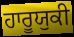
ਹਾਰੂਯੁਕੀ